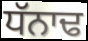
ਧੱਨਾਢ